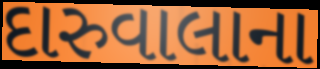
દારુવાલાના